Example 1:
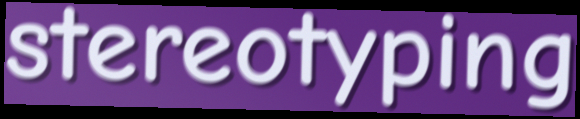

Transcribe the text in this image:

stereotyping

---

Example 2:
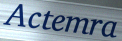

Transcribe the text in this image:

Actemra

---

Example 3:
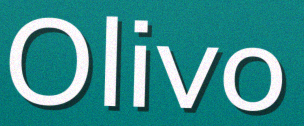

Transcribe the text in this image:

Olivo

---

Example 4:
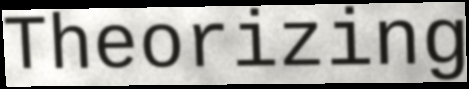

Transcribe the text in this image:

Theorizing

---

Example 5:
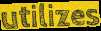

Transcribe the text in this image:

utilizes